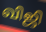
விஜி